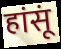
हांसूं